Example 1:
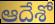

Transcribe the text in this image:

ఆదేశో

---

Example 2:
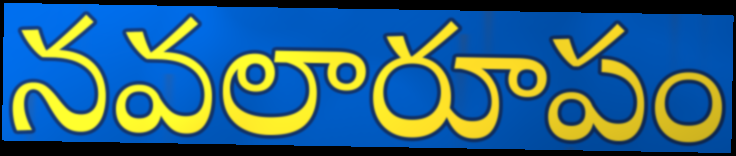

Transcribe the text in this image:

నవలారూపం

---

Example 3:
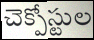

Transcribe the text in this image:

చెక్పోస్టుల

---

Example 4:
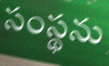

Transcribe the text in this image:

సంస్థను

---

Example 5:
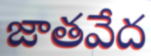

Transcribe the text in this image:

జాతవేద